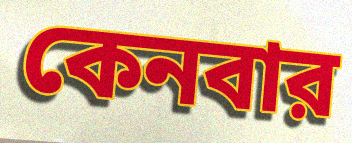
কেনবার